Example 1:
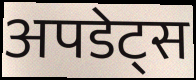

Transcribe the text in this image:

अपडेट्स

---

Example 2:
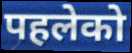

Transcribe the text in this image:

पहलेको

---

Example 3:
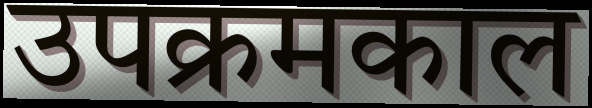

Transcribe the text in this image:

उपक्रमकाल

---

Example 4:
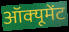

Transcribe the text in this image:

ऑक्यूमेंट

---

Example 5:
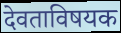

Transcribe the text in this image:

देवताविषयक